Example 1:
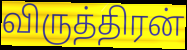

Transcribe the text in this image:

விருத்திரன்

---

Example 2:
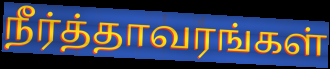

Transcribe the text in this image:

நீர்த்தாவரங்கள்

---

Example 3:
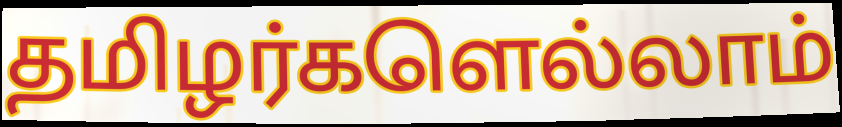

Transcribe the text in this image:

தமிழர்களெல்லாம்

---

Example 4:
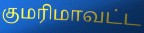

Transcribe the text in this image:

குமரிமாவட்ட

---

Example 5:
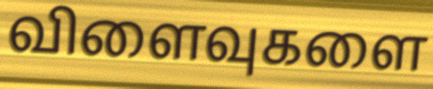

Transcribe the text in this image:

விளைவுகளை